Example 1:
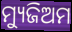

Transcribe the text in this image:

ମ୍ଯୁଜିଅମ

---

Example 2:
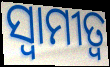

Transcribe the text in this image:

ସ୍ଵାମୀତ୍ବ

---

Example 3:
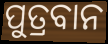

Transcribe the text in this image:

ପୁତ୍ରବାନ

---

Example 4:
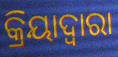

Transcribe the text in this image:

କ୍ରିୟାଦ୍ଵାରା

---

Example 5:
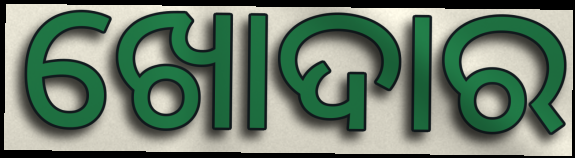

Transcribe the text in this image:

ଖୋଦାର